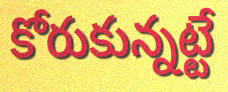
కోరుకున్నట్టే